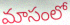
మాసంలో